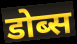
डोब्स